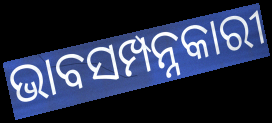
ଭାବସମ୍ପନ୍ନକାରୀ